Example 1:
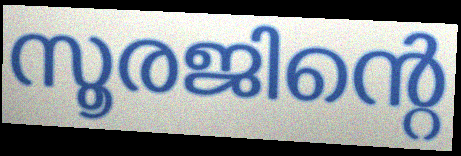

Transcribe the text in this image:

സൂരജിന്റെ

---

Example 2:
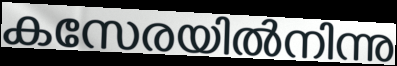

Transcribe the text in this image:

കസേരയിൽനിന്നു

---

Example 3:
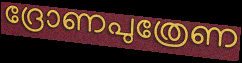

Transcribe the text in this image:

ദ്രോണപുത്രേണ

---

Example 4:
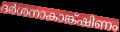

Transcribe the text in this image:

ദർശനാകാങ്ക്ഷിണം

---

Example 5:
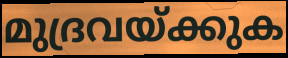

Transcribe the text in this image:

മുദ്രവയ്ക്കുക